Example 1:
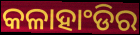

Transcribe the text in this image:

କଳାହାଂଡିର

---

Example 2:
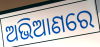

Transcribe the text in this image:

ଅଭିଆଣରେ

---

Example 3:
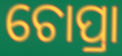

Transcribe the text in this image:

ଚୋପ୍ରା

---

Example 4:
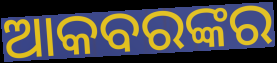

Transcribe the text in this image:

ଆକବରଙ୍କର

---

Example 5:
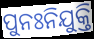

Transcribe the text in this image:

ପୁନଃନିଯୁକ୍ତି